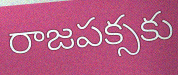
రాజపక్సకు